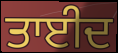
ਤਾਈਦ